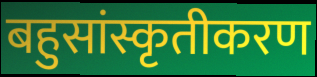
बहुसांस्कृतीकरण